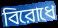
বিরোধে